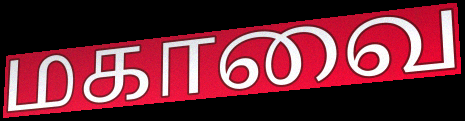
மகாவை